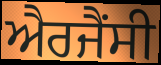
ਐਰਜੈਂਸੀ